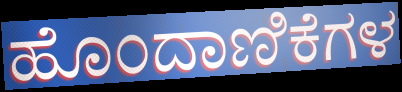
ಹೊಂದಾಣಿಕೆಗಳ